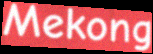
Mekong